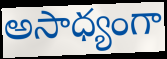
అసాధ్యంగా